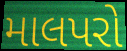
માલપરો